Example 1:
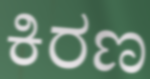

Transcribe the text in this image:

ಕಿರಣ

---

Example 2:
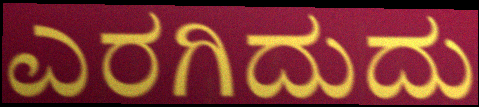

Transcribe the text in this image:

ಎರಗಿದುದು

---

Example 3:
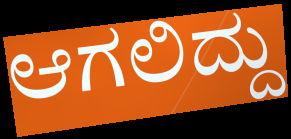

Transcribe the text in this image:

ಆಗಲಿದ್ದು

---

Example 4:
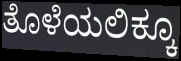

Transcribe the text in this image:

ತೊಳೆಯಲಿಕ್ಕೂ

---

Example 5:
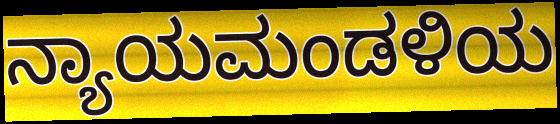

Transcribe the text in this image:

ನ್ಯಾಯಮಂಡಳಿಯ